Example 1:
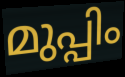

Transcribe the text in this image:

മുപ്പിം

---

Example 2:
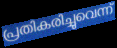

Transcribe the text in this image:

പ്രതികരിച്ചുവെന്ന്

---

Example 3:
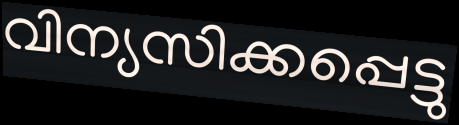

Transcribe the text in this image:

വിന്യസിക്കപ്പെട്ടു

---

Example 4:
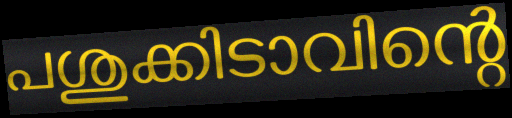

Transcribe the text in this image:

പശുക്കിടാവിന്റെ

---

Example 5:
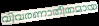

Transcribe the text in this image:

വിവരണാതീതമായ